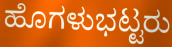
ಹೊಗಳುಭಟ್ಟರು